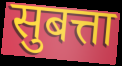
सुबत्ता